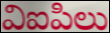
విఐపిలు